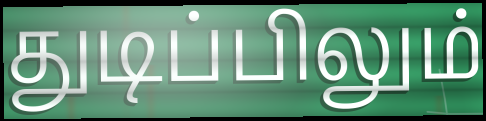
துடிப்பிலும்